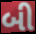
બી